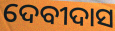
ଦେବୀଦାସ